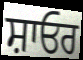
ਸ਼ਾਓਰ